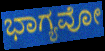
ಭಾಗ್ಯವೋ